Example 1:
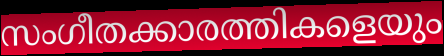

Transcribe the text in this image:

സംഗീതക്കാരത്തികളെയും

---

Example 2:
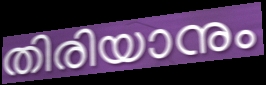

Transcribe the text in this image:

തിരിയാനും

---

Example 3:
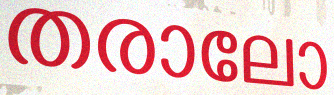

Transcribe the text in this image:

തരാലോ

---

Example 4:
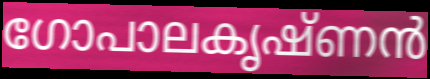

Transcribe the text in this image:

ഗോപാലകൃഷ്ണൻ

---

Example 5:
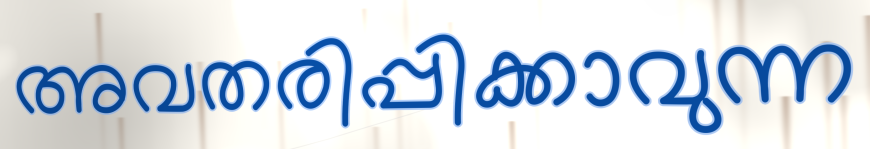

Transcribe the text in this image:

അവതരിപ്പിക്കാവുന്ന